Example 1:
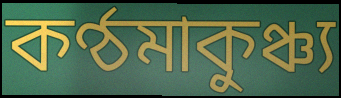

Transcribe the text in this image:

কণ্ঠমাকুঞ্চ্য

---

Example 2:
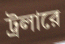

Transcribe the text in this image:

ট্রলারে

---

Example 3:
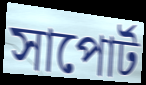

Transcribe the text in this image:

সাপোর্ট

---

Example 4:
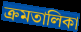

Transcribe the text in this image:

ক্রমতালিকা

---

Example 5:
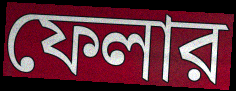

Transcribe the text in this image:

ফেলার